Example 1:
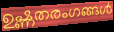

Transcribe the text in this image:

ഉഷ്ണതരംഗങ്ങൾ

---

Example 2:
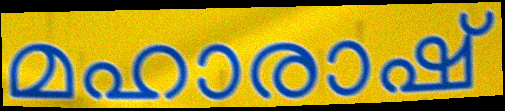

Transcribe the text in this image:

മഹാരാഷ്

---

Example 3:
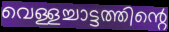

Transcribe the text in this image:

വെള്ളച്ചാട്ടത്തിന്റെ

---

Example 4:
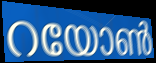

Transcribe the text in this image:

റയോൺ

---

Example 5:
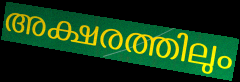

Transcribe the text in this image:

അക്ഷരത്തിലും